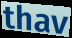
thav